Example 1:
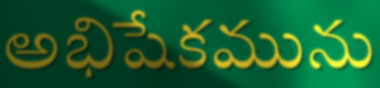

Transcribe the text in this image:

అభిషేకమును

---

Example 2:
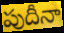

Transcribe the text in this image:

పుదీనా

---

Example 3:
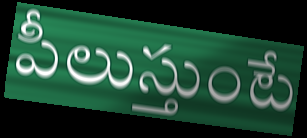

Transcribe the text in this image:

పీలుస్తుంటే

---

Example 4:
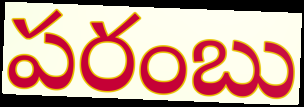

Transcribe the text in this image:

పరంబు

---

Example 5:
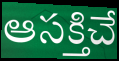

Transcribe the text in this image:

ఆసక్తిచే